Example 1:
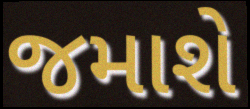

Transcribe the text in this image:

જમાશે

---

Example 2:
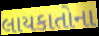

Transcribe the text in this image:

લાયકાતોના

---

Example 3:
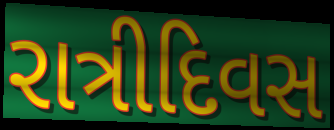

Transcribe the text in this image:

રાત્રીદિવસ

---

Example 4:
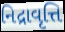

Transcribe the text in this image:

નિદ્રાવૃત્તિ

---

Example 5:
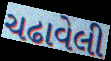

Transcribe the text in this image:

ચઢાવેલી